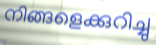
നിങ്ങളെക്കുറിച്ചു